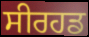
ਸੀਰਹਡ